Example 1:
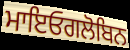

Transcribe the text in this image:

ਮਾਇਓਗਲੋਬਿਨ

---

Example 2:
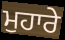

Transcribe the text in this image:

ਮੁਹਾਰੇ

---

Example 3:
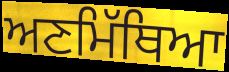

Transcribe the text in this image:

ਅਣਮਿੱਥਿਆ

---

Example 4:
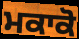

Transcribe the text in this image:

ਮਕਾਕੋ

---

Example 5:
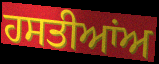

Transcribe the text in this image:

ਹਸਤੀਆਂਅ